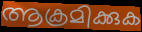
ആക്രമിക്കുക